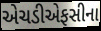
એચડીએફસીના